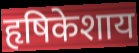
हृषिकेशाय